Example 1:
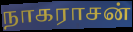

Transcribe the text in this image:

நாகராசன்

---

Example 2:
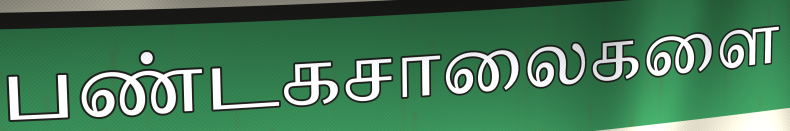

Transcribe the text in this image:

பண்டகசாலைகளை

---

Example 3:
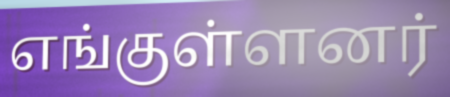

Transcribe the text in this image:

எங்குள்ளனர்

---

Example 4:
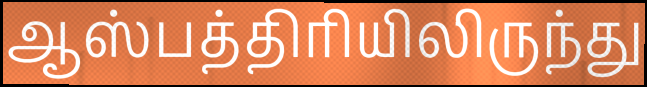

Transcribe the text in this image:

ஆஸ்பத்திரியிலிருந்து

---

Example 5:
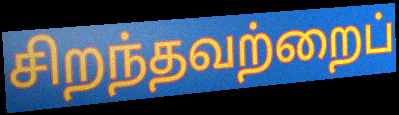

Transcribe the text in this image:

சிறந்தவற்றைப்